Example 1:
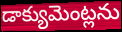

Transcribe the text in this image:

డాక్యుమెంట్లను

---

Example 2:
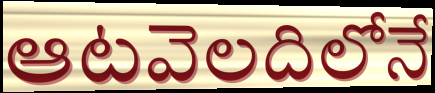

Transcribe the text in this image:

ఆటవెలదిలోనే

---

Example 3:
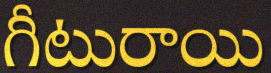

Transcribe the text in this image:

గీటురాయి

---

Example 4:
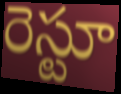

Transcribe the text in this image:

రెస్టూ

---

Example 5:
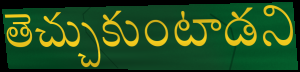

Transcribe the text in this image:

తెచ్చుకుంటాడని